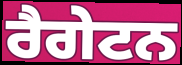
ਰੈਗੇਟਨ